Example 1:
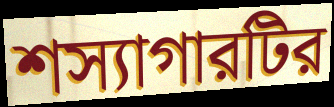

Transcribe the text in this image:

শস্যাগারটির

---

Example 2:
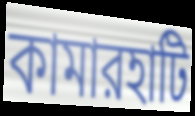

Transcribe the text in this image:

কামারহাটি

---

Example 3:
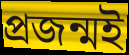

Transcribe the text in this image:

প্রজন্মই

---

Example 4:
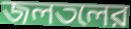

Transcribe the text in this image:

জলতলের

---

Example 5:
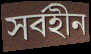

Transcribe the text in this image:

সর্বহীন